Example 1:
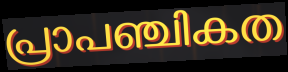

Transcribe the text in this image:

പ്രാപഞ്ചികത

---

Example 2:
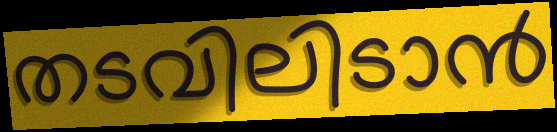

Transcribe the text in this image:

തടവിലിടാൻ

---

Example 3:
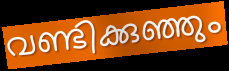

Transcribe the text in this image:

വണ്ടിക്കുഞ്ഞും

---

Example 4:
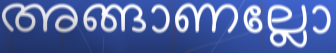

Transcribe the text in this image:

അങ്ങാണല്ലോ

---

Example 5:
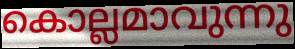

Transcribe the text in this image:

കൊല്ലമാവുന്നു